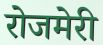
रोजमेरी